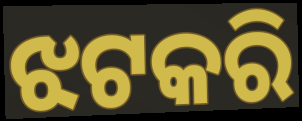
ଝଟକରି